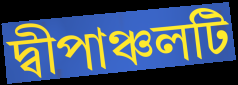
দ্বীপাঞ্চলটি